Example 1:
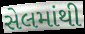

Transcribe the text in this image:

સેલમાંથી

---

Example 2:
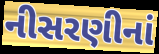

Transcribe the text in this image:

નીસરણીનાં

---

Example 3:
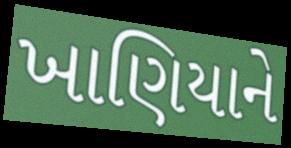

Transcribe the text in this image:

ખાણિયાને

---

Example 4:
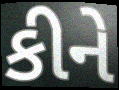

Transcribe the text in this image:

કીને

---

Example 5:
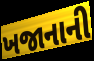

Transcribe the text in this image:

ખજાનાની